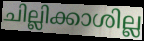
ചില്ലിക്കാശില്ല